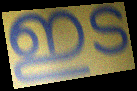
ഇട